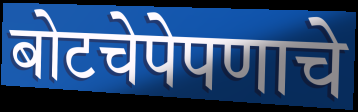
बोटचेपेपणाचे